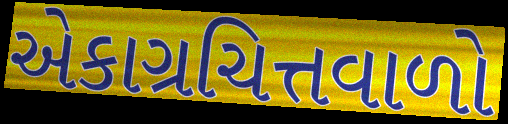
એકાગ્રચિત્તવાળો